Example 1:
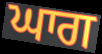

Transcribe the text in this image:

ਘਾਗ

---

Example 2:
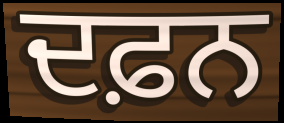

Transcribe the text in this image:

ਦਫ਼ਨ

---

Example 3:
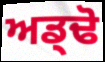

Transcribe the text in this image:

ਅਡ੍ਢੋ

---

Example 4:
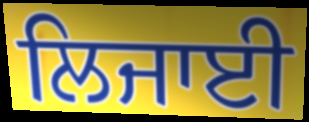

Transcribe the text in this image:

ਲਿਜਾਈ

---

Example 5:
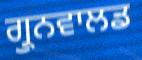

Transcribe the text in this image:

ਗ੍ਰੁਨਵਾਲਡ